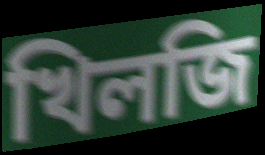
খিলজি